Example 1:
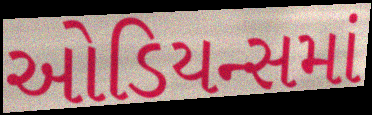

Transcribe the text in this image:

ઓડિયન્સમાં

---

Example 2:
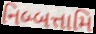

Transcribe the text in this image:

નિબ્બત્તામિ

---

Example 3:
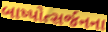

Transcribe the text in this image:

બાષ્પોત્સર્જનના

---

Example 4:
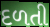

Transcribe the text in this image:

દળતી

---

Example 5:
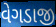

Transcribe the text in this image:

વેગડાજી